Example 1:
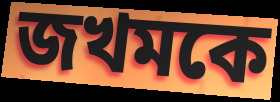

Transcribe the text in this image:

জখমকে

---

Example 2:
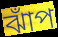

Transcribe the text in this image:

ঝাঁপ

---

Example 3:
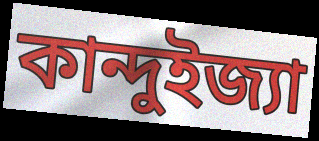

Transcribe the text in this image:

কান্দুইজ্যা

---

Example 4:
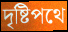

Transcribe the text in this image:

দৃষ্টিপথে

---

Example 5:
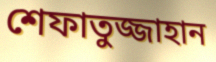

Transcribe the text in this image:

শেফাতুজ্জাহান